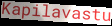
Kapilavastu